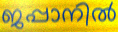
ജപ്പാനിൽ